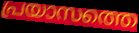
പ്രയാസത്തെ